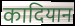
कादियान